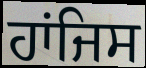
ਹਾਂਜਿਸ